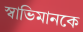
স্বাভিমানকে